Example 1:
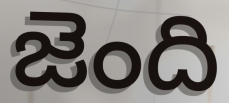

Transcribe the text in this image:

జెంది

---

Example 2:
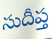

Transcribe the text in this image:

సుదీప్త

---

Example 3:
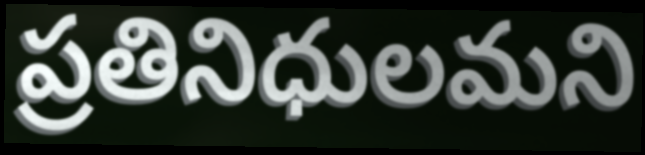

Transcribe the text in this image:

ప్రతినిధులమని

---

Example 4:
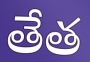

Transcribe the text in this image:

తేత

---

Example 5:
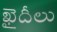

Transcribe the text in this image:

ఖైదీలు